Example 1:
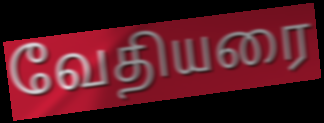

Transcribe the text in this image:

வேதியரை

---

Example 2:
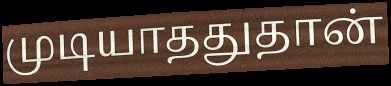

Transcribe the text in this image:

முடியாததுதான்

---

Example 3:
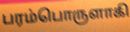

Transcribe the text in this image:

பரம்பொருளாகி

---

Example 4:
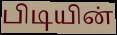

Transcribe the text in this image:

பிடியின்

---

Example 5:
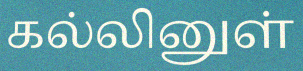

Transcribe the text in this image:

கல்லினுள்